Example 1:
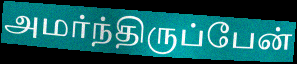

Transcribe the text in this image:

அமர்ந்திருப்பேன்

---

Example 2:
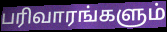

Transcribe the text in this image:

பரிவாரங்களும்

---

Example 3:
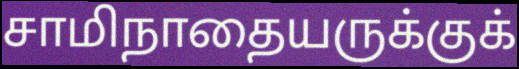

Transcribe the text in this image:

சாமிநாதையருக்குக்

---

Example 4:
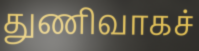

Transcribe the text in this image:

துணிவாகச்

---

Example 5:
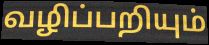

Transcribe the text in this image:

வழிப்பறியும்